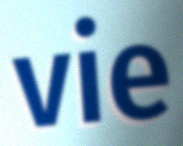
vie